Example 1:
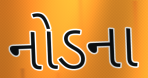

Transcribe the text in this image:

નોડના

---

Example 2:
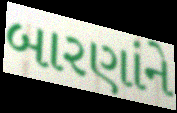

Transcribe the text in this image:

બારણાંને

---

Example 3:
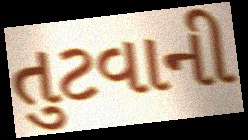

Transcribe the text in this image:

તુટવાની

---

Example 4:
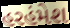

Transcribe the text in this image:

હરહંમેશ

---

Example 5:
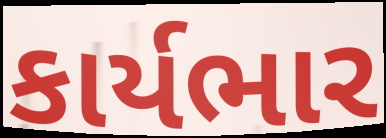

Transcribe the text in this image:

કાર્યભાર